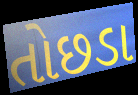
તોછડા